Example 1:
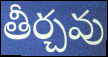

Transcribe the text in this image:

తీర్చవు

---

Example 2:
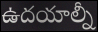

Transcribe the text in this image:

ఉదయాల్నీ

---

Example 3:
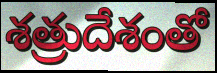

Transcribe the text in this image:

శత్రుదేశంతో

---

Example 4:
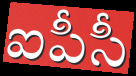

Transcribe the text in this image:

ఐపీసీ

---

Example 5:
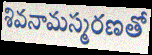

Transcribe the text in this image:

శివనామస్మరణతో